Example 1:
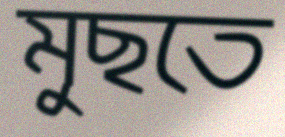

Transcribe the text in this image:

মুছতে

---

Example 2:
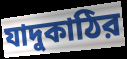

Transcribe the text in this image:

যাদুকাঠির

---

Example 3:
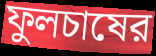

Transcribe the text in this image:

ফুলচাষের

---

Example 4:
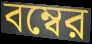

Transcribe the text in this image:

বম্বের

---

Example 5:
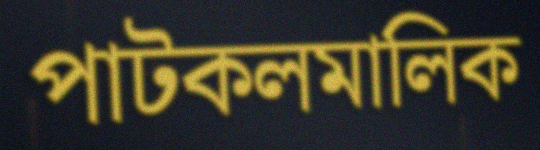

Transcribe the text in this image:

পাটকলমালিক